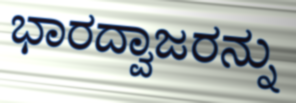
ಭಾರದ್ವಾಜರನ್ನು